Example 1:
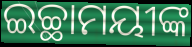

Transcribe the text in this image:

ଇଚ୍ଛାମୟୀଙ୍କ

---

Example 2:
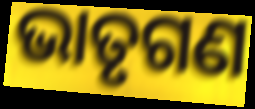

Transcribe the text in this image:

ଭାତୃଗଣ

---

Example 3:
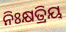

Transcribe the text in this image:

ନିଃକ୍ଷତ୍ରିୟ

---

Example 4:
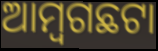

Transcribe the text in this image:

ଆମ୍ବଗଛଟା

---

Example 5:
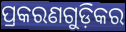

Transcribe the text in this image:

ପ୍ରକରଣଗୁଡ଼ିକର